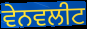
ਵੇਨਵਲੀਟ